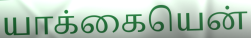
யாக்கையென்